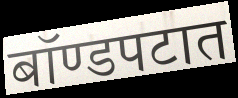
बॉण्डपटात